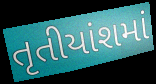
તૃતીયાંશમાં